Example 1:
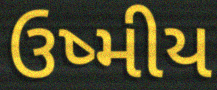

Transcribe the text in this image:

ઉષ્મીય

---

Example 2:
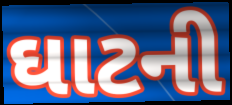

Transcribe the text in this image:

ઘાટની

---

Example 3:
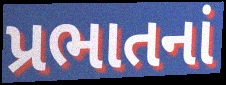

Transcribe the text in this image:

પ્રભાતનાં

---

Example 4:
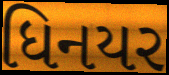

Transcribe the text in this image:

ધિનયર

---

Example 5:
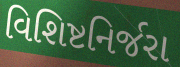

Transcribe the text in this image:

વિશિષ્ટનિર્જરા